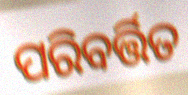
ପରିବର୍ତ୍ତିତ